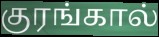
குரங்கால்